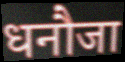
धनौजा